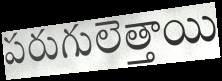
పరుగులెత్తాయి